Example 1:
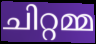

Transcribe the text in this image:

ചിറ്റമ്മ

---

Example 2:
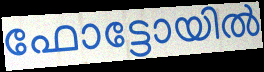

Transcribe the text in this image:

ഫോട്ടോയിൽ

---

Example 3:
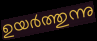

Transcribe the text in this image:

ഉയർത്തുന്നു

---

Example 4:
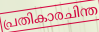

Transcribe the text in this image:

പ്രതികാരചിന്ത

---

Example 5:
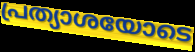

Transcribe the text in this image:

പ്രത്യാശയോടെ